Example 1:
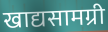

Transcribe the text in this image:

खाद्यसामग्री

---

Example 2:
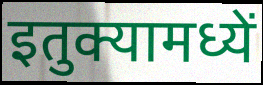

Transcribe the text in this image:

इतुक्यामध्यें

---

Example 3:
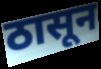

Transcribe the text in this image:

ठासून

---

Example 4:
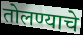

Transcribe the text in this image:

तोलण्याचे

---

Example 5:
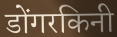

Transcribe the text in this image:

डोंगरकिनी